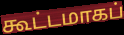
கூட்டமாகப்